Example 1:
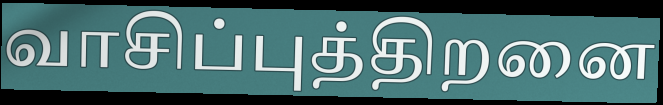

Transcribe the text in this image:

வாசிப்புத்திறனை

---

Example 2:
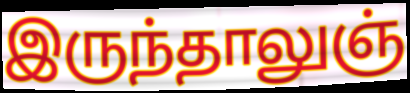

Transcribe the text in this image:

இருந்தாலுஞ்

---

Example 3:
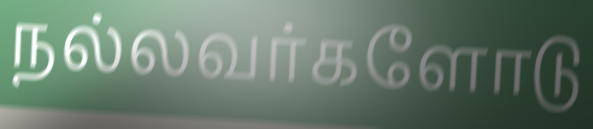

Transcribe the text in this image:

நல்லவர்களோடு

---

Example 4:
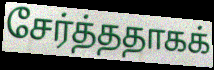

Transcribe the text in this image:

சேர்த்ததாகக்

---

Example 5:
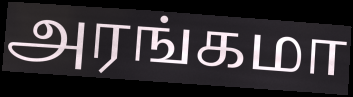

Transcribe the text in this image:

அரங்கமா